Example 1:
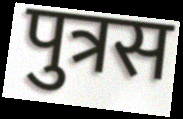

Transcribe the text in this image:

पुत्रस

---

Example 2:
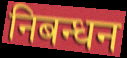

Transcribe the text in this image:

निबन्धन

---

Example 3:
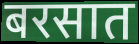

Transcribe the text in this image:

बरसात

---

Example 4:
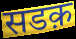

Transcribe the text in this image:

सडक़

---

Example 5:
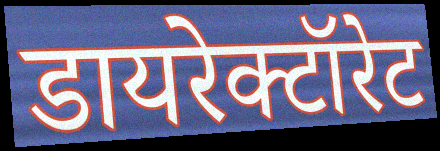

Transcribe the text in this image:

डायरेक्टॉरेट